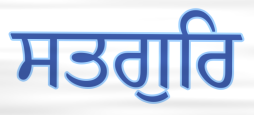
ਸਤਗੁਰਿ